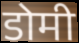
डोमी